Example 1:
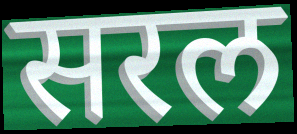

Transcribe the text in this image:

सरल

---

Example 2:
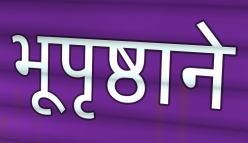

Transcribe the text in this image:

भूपृष्ठाने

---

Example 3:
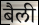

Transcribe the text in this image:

बैली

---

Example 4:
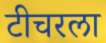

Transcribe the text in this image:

टीचरला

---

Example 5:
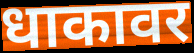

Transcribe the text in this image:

धाकावर